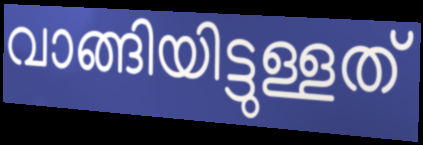
വാങ്ങിയിട്ടുള്ളത്